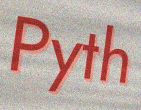
Pyth